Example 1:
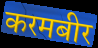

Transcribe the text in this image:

करमबीर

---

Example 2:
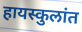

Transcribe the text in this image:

हायस्कुलांत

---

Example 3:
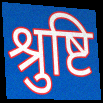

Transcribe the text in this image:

श्रुष्टि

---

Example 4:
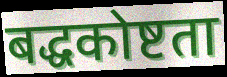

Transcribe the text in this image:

बद्धकोष्टता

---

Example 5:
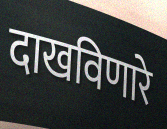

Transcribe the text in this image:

दाखविणारे